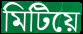
মিটিয়ে